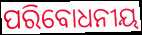
ପରିବୋଧନୀୟ